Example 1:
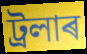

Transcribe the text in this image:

ট্ৰলাৰ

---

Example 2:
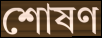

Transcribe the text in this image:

শোষণ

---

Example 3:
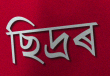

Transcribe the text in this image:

ছিদ্ৰৰ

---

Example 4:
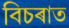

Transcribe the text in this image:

বিচৰাত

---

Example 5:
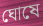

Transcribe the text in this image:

ঘোষে